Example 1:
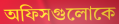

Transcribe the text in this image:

অফিসগুলোকে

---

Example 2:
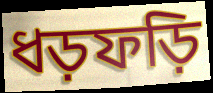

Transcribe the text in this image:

ধড়ফড়ি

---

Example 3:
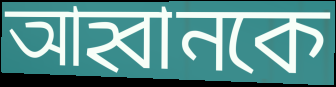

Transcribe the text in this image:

আহ্বানকে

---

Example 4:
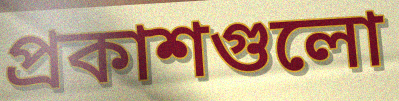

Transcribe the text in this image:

প্রকাশগুলো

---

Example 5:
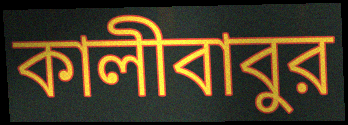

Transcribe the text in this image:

কালীবাবুর